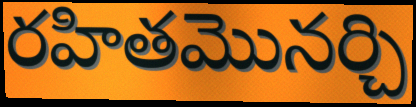
రహితమొనర్చి